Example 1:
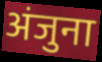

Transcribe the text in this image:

अंजुना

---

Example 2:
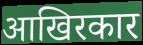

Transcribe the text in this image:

आखिरकार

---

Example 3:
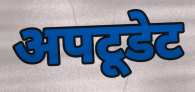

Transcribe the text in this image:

अपटूडेट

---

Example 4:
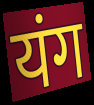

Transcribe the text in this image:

यंग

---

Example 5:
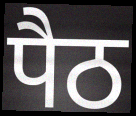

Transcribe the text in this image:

पैठ